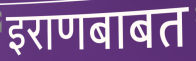
इराणबाबत